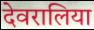
देवरालिया